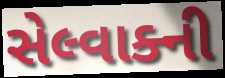
સેલ્વાક્ની